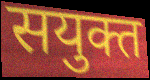
सयुक्त